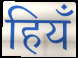
हियँ